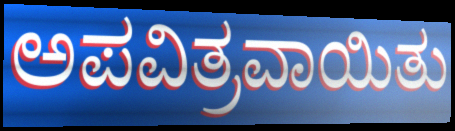
ಅಪವಿತ್ರವಾಯಿತು